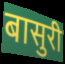
बासुरी